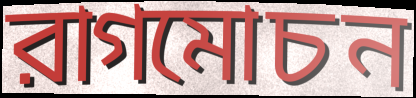
রাগমোচন